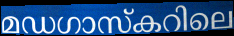
മഡഗാസ്കറിലെ